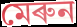
মেৰুন